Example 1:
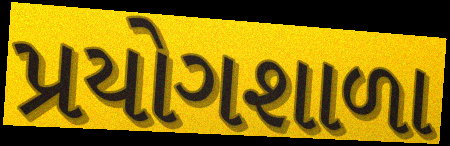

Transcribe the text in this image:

પ્રયોગશાળા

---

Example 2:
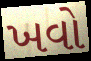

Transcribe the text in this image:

ખવો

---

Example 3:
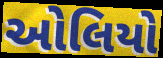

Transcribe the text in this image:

ઓલિયો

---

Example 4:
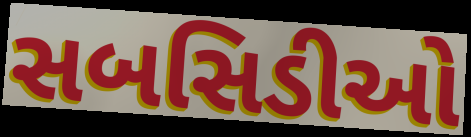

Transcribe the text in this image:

સબસિડીઓ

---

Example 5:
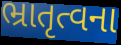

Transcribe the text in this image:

ભ્રાતૃત્વના